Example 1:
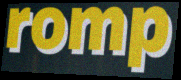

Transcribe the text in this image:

romp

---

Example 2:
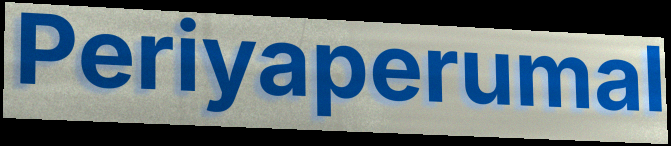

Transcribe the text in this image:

Periyaperumal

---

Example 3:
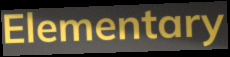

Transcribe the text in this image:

Elementary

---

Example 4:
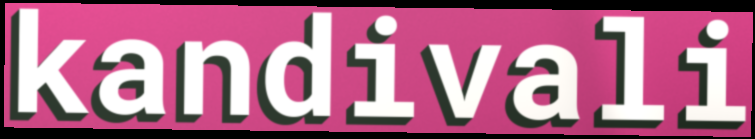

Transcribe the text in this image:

kandivali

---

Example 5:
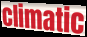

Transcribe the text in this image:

climatic